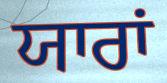
ਯਾਰਾਂ